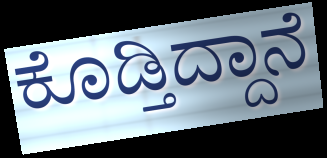
ಕೊಡ್ತಿದ್ದಾನೆ